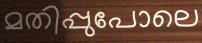
മതിപ്പുപോലെ